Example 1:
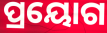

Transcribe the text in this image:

ପ୍ରୟୋଗ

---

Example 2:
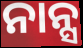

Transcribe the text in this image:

ନାନ୍ସ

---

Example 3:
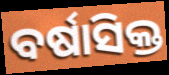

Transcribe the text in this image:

ବର୍ଷାସିକ୍ତ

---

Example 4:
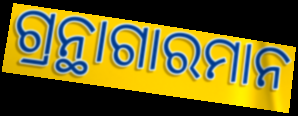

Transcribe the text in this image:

ଗ୍ରନ୍ଥାଗାରମାନ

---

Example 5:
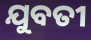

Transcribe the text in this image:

ଯୁବତୀ